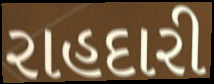
રાહદારી